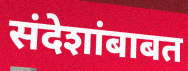
संदेशांबाबत